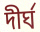
দীৰ্ঘ